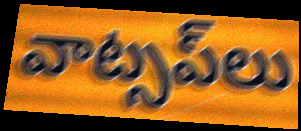
వాట్సప్‌లు